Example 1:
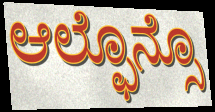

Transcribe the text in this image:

ಆಲ್ಫೊನ್ಸೊ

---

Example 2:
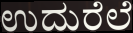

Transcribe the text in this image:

ಉದುರೆಲೆ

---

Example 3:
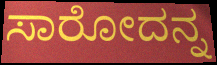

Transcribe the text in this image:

ಸಾರೋದನ್ನ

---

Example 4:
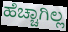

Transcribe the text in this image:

ಹೆಚ್ಚಾಗಿಲ್ಲ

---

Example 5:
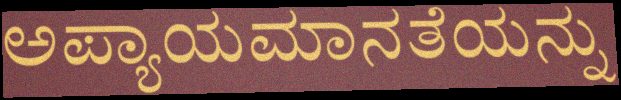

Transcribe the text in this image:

ಅಪ್ಯಾಯಮಾನತೆಯನ್ನು